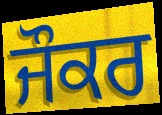
ਜੌਕਰ